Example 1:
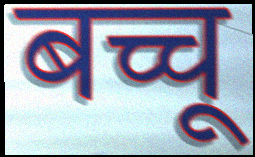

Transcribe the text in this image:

बच्चू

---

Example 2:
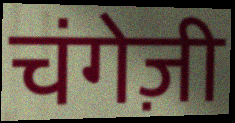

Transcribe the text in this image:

चंगेज़ी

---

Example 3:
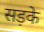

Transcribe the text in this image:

सड़के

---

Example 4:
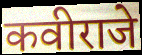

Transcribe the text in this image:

कवीराजे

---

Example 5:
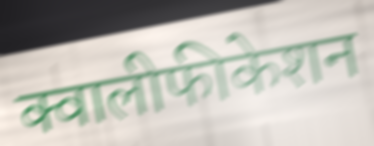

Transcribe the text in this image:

क्वालीफीकेशन